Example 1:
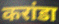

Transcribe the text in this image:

करांडा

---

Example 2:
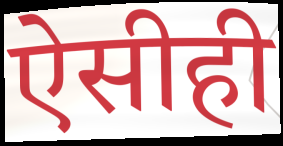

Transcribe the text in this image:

ऐसीही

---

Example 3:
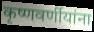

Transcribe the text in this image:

कृष्णवर्णीयांना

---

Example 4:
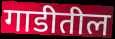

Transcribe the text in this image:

गाडीतील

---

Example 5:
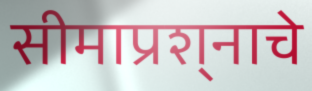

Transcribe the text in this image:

सीमाप्रश्नाचे